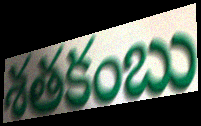
శతకంబు